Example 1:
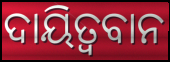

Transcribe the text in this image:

ଦାୟିତ୍ବବାନ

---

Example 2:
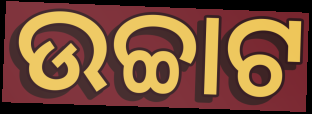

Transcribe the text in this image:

ଉଚ୍ଚାଟ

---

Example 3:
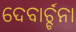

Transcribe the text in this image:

ଦେବାର୍ଚ୍ଚନା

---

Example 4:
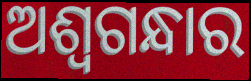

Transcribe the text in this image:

ଅଶ୍ୱଗନ୍ଧାର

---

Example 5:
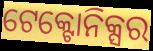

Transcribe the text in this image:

ଟେକ୍ଟୋନିକ୍ସର